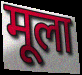
मूला